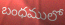
బంధములో